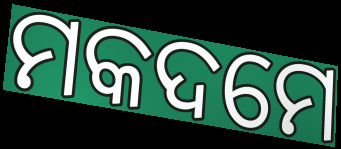
ମକଦମେ